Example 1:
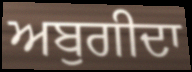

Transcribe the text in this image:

ਅਬੁਗੀਦਾ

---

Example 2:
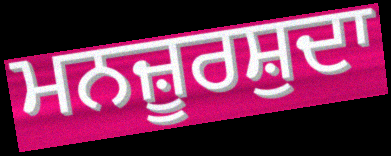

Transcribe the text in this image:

ਮਨਜ਼ੂਰਸ਼ੁਦਾ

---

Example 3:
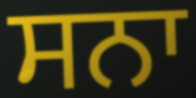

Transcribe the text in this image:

ਸਨਾ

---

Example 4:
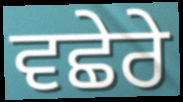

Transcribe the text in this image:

ਵਛੇਰੇ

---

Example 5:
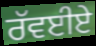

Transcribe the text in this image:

ਰੱਵਈਏ